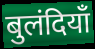
बुलंदियाँ